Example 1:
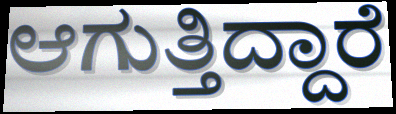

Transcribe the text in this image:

ಆಗುತ್ತಿದ್ದಾರೆ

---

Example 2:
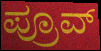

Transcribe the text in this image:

ಪ್ರೂವ್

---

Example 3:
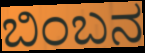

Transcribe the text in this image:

ಬಿಂಬನ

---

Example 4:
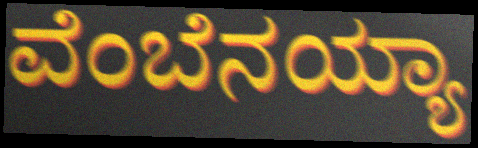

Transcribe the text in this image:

ವೆಂಬೆನಯ್ಯಾ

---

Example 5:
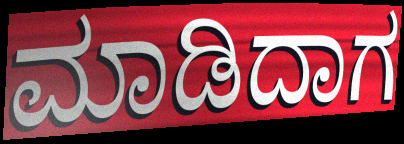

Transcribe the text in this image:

ಮಾಡಿದಾಗ